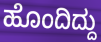
ಹೊಂದಿದ್ದು